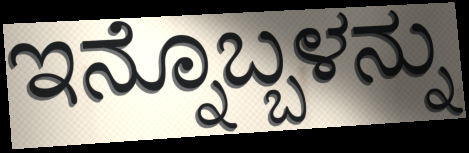
ಇನ್ನೊಬ್ಬಳನ್ನು